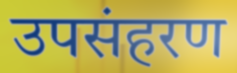
उपसंहरण